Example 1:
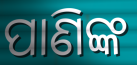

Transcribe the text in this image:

ପାଣିଙ୍କ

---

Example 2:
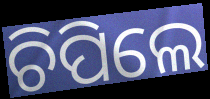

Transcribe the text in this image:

ଚିପିଲେ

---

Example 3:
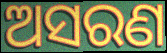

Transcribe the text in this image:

ଅସରଣ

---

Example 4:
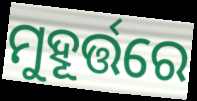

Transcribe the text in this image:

ମୁହୂର୍ତ୍ତରେ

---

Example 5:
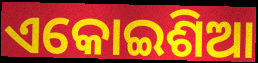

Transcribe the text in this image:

ଏକୋଇଶିଆ